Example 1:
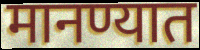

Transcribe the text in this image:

मानण्यात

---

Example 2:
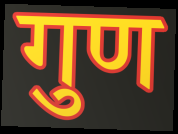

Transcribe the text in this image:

गुण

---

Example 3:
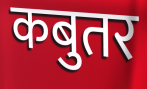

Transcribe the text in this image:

कबुतर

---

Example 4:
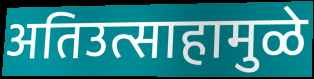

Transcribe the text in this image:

अतिउत्साहामुळे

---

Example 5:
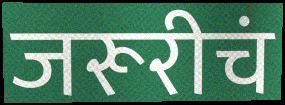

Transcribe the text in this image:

जरूरीचं